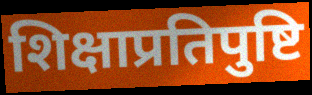
शिक्षाप्रतिपुष्टि